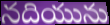
నదియును